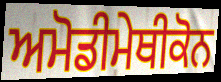
ਅਮੋਡੀਮੇਥੀਕੋਨ